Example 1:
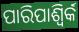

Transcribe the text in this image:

ପାରିପାଶ୍ୱିର୍କ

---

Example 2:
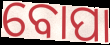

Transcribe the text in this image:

ବୋପା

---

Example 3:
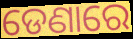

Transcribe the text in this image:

ଡେଣାରେ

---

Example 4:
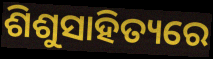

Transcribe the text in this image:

ଶିଶୁସାହିତ୍ୟରେ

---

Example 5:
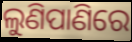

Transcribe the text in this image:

ଲୁଣିପାଣିରେ